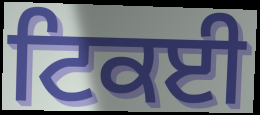
ਟਿਕਈ